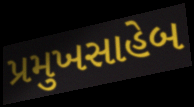
પ્રમુખસાહેબ